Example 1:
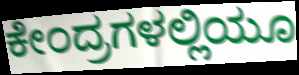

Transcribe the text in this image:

ಕೇಂದ್ರಗಳಲ್ಲಿಯೂ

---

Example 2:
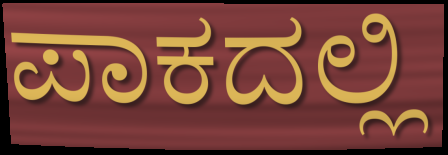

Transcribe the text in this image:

ಪಾಕದಲ್ಲಿ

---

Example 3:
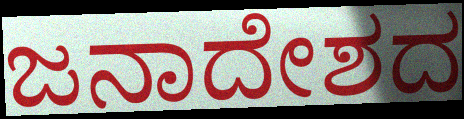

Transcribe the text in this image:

ಜನಾದೇಶದ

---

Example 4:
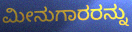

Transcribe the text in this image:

ಮೀನುಗಾರರನ್ನು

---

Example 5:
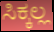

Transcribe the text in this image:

ಸಿಕ್ಕಲ್ಲ